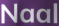
Naal